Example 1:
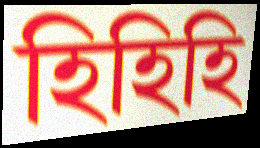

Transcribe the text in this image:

হিহিহি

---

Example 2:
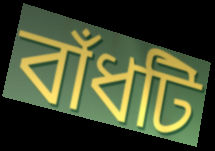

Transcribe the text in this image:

বাঁধটি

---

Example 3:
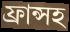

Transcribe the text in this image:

ফ্রান্সহ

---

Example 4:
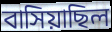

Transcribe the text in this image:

বাসিয়াছিল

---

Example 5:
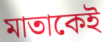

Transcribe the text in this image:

মাতাকেই